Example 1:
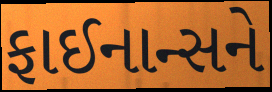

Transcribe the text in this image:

ફાઈનાન્સને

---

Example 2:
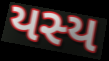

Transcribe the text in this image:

યસ્ય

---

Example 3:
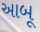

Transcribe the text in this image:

આબૂ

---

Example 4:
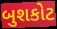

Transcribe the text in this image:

બુશકોટ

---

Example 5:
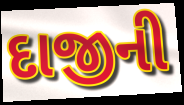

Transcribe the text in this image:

દાજીની